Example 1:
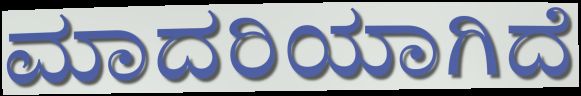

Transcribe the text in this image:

ಮಾದರಿಯಾಗಿದೆ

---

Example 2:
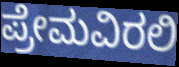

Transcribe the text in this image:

ಪ್ರೇಮವಿರಲಿ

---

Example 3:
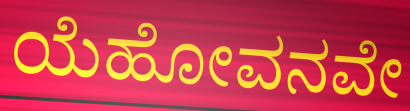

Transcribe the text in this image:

ಯೆಹೋವನವೇ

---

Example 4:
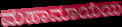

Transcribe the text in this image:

ಮಹಾಮಾಯೆಯ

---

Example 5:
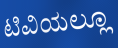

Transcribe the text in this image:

ಟಿವಿಯಲ್ಲೂ